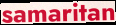
samaritan